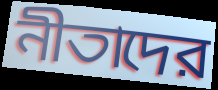
নীতাদের